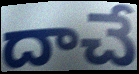
దాచే